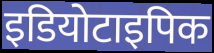
इडियोटाइपिक